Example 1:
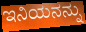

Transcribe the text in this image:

ಇನಿಯನನ್ನು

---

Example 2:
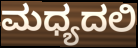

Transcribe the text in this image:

ಮಧ್ಯದಲಿ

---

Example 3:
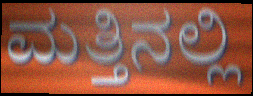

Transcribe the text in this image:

ಮತ್ತಿನಲ್ಲಿ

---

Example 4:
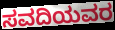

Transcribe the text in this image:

ಸವದಿಯವರ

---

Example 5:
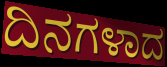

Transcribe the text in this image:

ದಿನಗಳಾದ